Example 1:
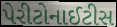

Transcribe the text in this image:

પેરીટોનાઈટીસ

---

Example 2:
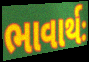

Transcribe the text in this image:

ભાવાર્થઃ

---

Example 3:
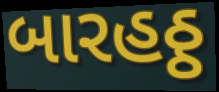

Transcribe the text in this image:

બારહઠ્ઠ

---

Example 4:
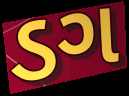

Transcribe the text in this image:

ડગ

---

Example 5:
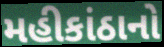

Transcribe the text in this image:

મહીકાંઠાનો